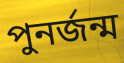
পুনৰ্জন্ম